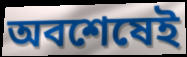
অবশেষেই